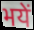
भयें